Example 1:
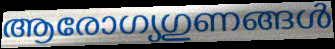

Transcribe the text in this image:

ആരോഗ്യഗുണങ്ങൾ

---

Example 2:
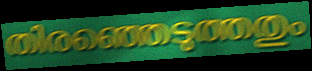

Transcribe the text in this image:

തിരഞ്ഞെടുത്തതും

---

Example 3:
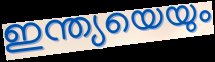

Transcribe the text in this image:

ഇന്ത്യയെയും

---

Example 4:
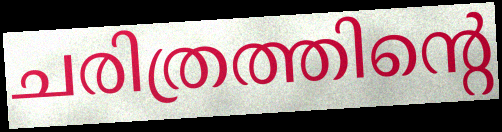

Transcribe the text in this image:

ചരിത്രത്തിന്റെ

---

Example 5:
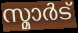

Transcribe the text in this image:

സ്മാർട്